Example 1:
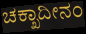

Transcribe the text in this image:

ಚಕ್ಖಾದೀನಂ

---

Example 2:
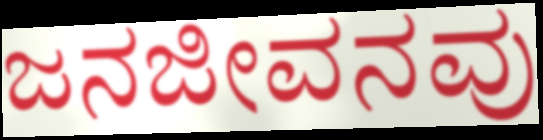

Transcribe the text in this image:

ಜನಜೀವನವು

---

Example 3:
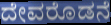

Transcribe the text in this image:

ದೇವರೊಡನೆ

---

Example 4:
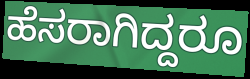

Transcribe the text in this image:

ಹೆಸರಾಗಿದ್ದರೂ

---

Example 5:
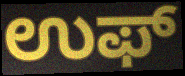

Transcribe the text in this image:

ಉಫ್